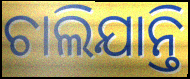
ଚାଲିଯାନ୍ତି